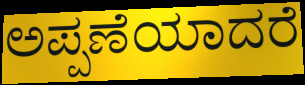
ಅಪ್ಪಣೆಯಾದರೆ